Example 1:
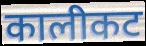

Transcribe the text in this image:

कालीकट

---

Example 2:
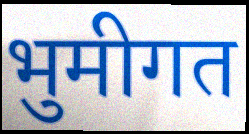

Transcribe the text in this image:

भुमीगत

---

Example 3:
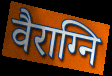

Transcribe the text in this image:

वैराग्नि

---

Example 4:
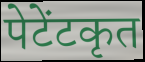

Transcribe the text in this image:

पेटेंटकृत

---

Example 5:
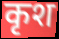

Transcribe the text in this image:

कृश